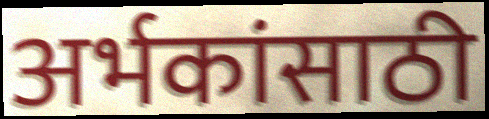
अर्भकांसाठी